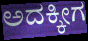
ಅದಕ್ಕೀಗ